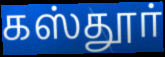
கஸ்தூர்